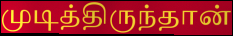
முடித்திருந்தான்